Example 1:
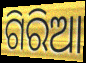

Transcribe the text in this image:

ଗିରିଆ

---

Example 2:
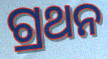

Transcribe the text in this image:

ଗ୍ରଥନ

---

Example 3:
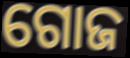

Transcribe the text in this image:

ଗୋଜ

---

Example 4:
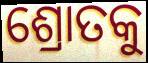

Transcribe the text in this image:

ଶ୍ରୋତକୁ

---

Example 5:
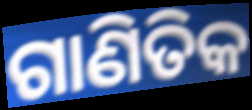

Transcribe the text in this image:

ଗାଣିତିକ